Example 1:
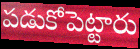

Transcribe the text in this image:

పడుకోపెట్టారు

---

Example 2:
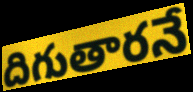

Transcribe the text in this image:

దిగుతారనే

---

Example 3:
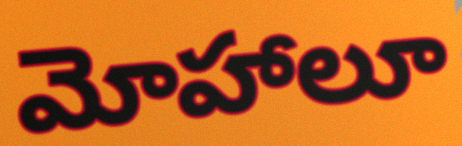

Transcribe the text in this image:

మోహాలూ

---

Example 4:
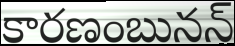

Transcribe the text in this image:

కారణంబునన్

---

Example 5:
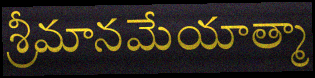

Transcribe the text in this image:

శ్రీమానమేయాత్మా